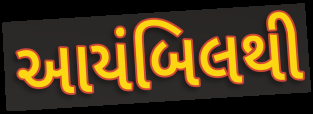
આયંબિલથી